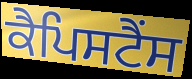
ਕੈਪਿਸਟੈਂਸ